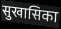
सुखासिका